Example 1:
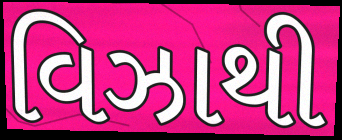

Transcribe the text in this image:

વિઝાથી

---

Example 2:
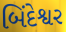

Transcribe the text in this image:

બિંદેશ્વર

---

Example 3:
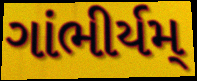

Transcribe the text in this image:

ગાંભીર્યમ્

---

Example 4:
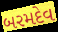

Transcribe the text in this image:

બરમદેવ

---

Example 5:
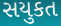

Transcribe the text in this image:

સયુકત